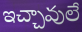
ఇచ్చావులే